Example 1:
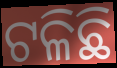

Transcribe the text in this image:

ଟଳିଛି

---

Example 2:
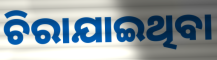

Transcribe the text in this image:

ଚିରାଯାଇଥିବା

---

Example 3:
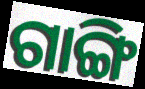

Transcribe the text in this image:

ଗାଙ୍ଗି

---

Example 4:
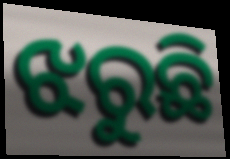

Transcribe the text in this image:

ଝରୁଛି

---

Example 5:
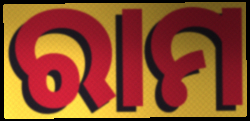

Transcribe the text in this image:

ରାମ